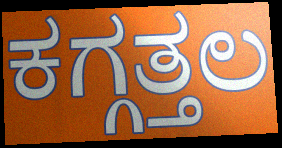
ಕಗ್ಗತ್ತಲ